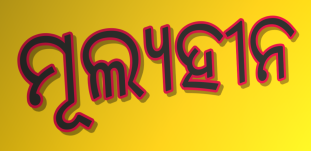
ମୂଲ୍ୟହୀନ